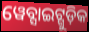
ୱେବ୍ସାଇଟ୍ଗୁଡ଼ିକ